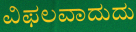
ವಿಫಲವಾದುದು